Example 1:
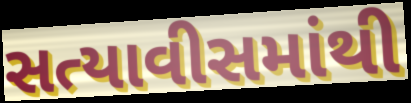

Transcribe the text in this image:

સત્યાવીસમાંથી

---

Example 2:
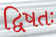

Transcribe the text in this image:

દ્વિષતઃ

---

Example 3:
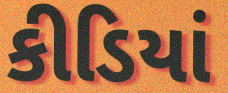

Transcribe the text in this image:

કીડિયાં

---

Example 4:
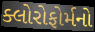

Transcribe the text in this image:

ક્લોરોફોર્મનો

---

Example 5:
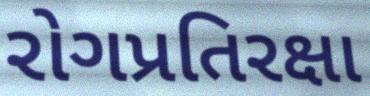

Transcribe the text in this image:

રોગપ્રતિરક્ષા